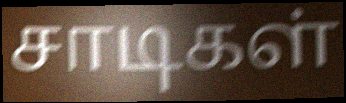
சாடிகள்